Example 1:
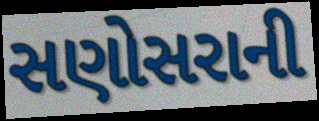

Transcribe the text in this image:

સણોસરાની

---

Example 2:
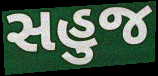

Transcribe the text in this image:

સહુજ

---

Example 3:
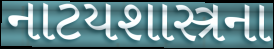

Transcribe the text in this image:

નાટયશાસ્ત્રના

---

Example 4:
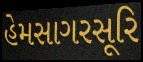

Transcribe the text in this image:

હેમસાગરસૂરિ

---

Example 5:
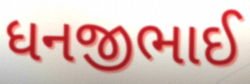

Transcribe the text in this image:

ધનજીભાઈ